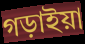
গড়াইয়া